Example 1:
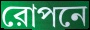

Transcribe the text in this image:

রোপনে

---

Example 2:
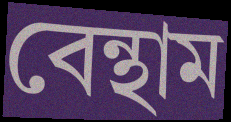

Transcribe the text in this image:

বেন্থাম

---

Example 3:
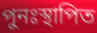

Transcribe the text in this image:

পুনঃস্থাপিত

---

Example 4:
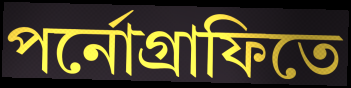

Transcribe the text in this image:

পর্নোগ্রাফিতে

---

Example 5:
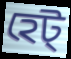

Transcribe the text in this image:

হেট্